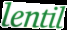
lentil